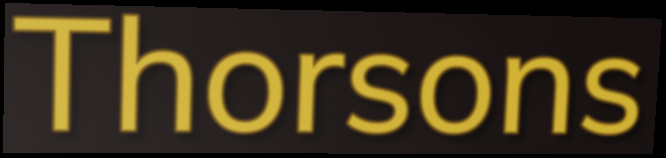
Thorsons